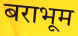
बराभूम